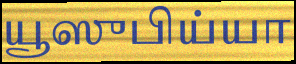
யூஸுபிய்யா